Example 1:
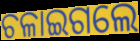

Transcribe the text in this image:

ଚଳାଇଗଲେ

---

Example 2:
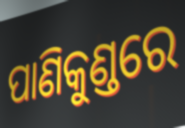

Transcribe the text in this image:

ପାଣିକୁଣ୍ଡରେ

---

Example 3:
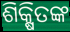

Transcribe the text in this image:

ଶିକ୍ଷିତଙ୍କ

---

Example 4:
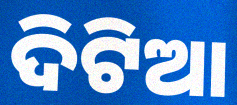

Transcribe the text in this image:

ଦିଟିଆ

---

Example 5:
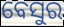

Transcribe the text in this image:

ବେସୁର